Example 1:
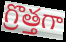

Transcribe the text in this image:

గ్రొత్తగా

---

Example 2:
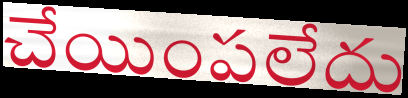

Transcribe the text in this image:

చేయింపలేదు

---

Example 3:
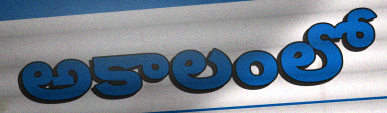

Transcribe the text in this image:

అకాలంలో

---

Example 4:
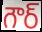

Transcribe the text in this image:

గౌర్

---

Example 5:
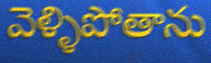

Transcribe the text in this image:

వెళ్ళిపోతాను